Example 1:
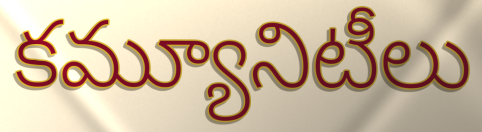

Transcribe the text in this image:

కమ్యూనిటీలు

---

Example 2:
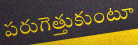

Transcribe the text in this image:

పరుగెత్తుకుంటూ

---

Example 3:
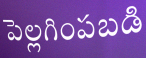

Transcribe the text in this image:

పెల్లగింపబడి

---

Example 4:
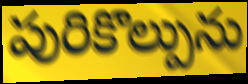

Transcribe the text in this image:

పురికొల్పును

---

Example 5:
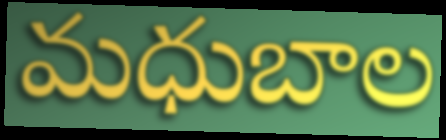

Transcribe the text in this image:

మధుబాల